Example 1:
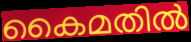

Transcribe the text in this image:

കൈമതിൽ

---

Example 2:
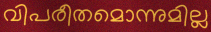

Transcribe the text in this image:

വിപരീതമൊന്നുമില്ല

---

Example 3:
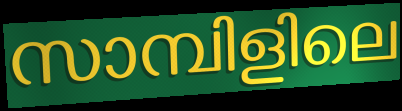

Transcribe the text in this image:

സാമ്പിളിലെ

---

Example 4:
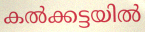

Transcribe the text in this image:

കൽക്കട്ടയിൽ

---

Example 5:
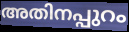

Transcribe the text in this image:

അതിനപ്പുറം